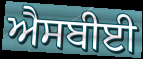
ਐਸਬੀਈ